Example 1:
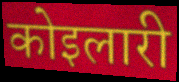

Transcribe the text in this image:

कोइलारी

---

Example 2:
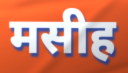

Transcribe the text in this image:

मसीह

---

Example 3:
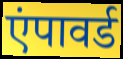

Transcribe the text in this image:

एंपावर्ड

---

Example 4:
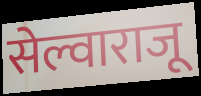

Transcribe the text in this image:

सेल्वाराजू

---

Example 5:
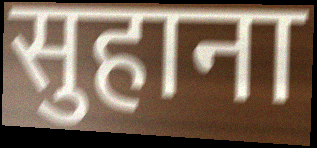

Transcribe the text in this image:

सुहाना